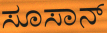
ಸೂಸಾನ್